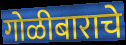
गोळीबाराचे